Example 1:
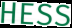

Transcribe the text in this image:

HESS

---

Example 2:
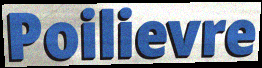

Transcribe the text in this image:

Poilievre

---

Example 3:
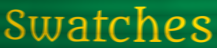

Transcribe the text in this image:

Swatches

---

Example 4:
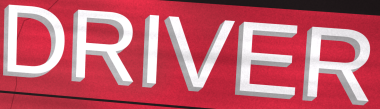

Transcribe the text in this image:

DRIVER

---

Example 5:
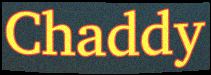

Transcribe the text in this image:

Chaddy